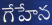
గేహేన